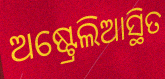
ଅଷ୍ଟ୍ରେଲିଆସ୍ଥିତ